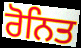
ਰੋਨਿਤ